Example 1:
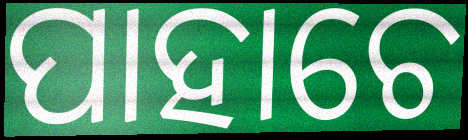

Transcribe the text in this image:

ପାହାଚେ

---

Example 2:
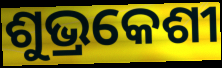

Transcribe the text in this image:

ଶୁଭ୍ରକେଶୀ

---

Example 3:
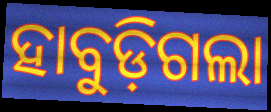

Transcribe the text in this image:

ହାବୁଡ଼ିଗଲା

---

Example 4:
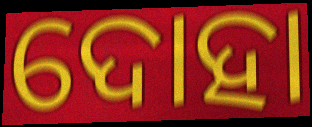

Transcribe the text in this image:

ଦୋହା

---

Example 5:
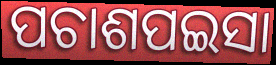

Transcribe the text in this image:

ପଚାଶପଇସା